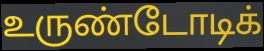
உருண்டோடிக்